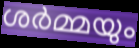
ശർമ്മയും